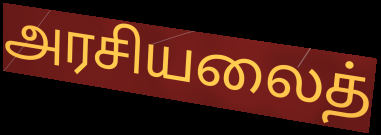
அரசியலைத்